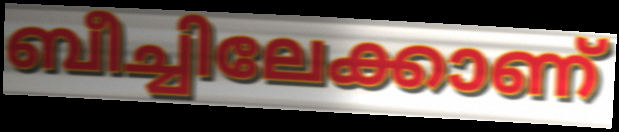
ബീച്ചിലേക്കാണ്